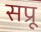
सप्रू